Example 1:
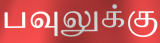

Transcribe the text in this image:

பவுலுக்கு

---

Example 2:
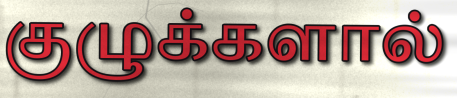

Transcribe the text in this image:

குழுக்களால்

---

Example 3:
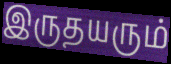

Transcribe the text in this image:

இருதயரும்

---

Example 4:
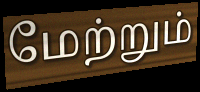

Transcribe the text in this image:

மேற்றும்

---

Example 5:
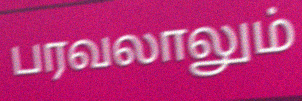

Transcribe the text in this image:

பரவலாலும்